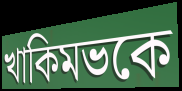
খাকিমভকে